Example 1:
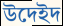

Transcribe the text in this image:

উদেইদ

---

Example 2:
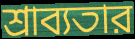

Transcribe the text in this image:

শ্রাব্যতার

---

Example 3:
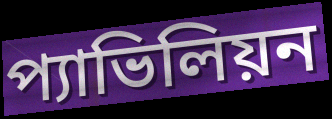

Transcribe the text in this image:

প্যাভিলিয়ন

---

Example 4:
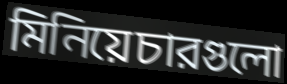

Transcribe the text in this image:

মিনিয়েচারগুলো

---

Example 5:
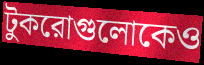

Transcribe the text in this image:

টুকরোগুলোকেও